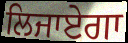
ਲਿਜਾਏਗਾ